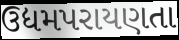
ઉદ્યમપરાયણતા